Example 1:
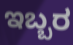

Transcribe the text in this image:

ಇಬ್ಬರ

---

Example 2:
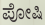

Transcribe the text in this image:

ಪೋಷಿ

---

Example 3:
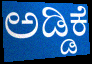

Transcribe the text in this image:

ಅಡ್ಡಿಕೆ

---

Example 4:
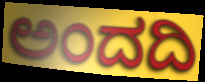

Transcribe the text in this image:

ಅಂದದಿ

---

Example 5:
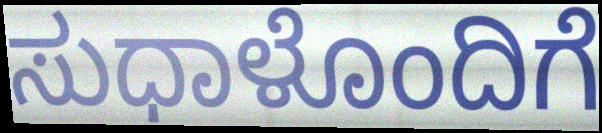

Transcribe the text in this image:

ಸುಧಾಳೊಂದಿಗೆ